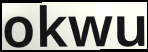
okwu